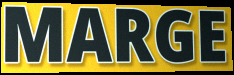
MARGE